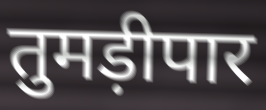
तुमड़ीपार